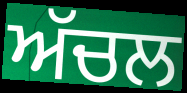
ਅੱਚਲ